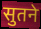
सुतने